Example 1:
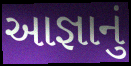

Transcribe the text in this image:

આજ્ઞાનું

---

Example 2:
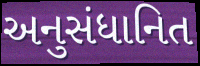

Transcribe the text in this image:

અનુસંધાનિત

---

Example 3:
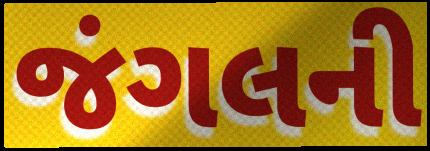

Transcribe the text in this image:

જંગલની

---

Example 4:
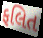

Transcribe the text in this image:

ફલિત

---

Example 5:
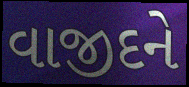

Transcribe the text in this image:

વાજીદને